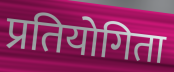
प्रतियोगिता